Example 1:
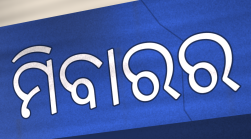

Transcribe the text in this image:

ମିବାରର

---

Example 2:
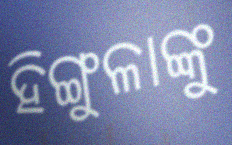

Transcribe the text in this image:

ହିଙ୍ଗୁଳାଙ୍କୁ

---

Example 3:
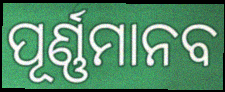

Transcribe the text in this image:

ପୂର୍ଣ୍ଣମାନବ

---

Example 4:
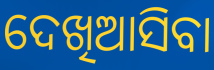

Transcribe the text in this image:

ଦେଖିଆସିବା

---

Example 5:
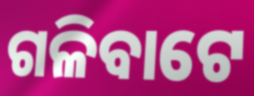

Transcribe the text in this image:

ଗଳିବାଟେ